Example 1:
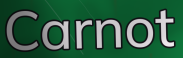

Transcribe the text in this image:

Carnot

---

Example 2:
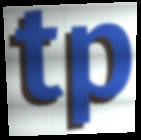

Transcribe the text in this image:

tp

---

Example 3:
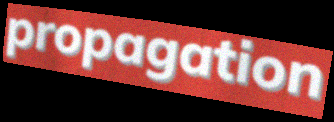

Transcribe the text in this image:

propagation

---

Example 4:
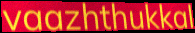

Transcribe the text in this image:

vaazhthukkal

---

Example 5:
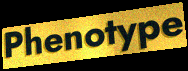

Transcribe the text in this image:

Phenotype